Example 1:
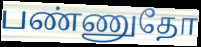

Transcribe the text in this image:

பண்ணுதோ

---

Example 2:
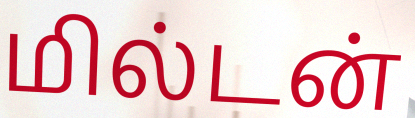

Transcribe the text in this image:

மில்டன்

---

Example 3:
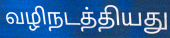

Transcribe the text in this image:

வழிநடத்தியது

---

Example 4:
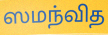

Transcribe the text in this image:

ஸமந்வித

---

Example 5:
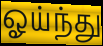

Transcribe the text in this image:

ஓய்ந்து